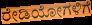
ರೇಡಿಯೋಗಳಿಗೆ